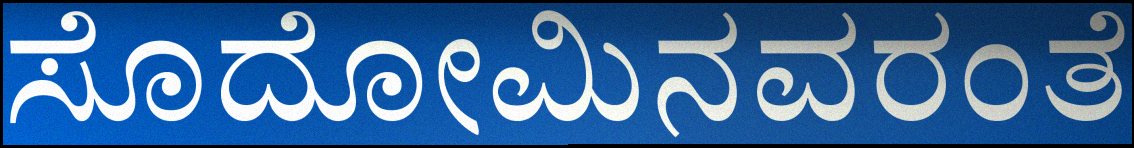
ಸೊದೋಮಿನವರಂತೆ